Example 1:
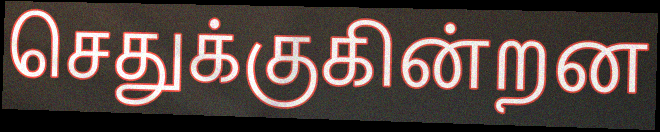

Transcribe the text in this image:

செதுக்குகின்றன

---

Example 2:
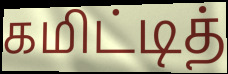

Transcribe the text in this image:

கமிட்டித்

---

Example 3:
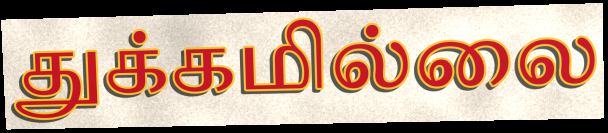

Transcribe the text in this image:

துக்கமில்லை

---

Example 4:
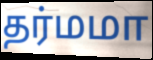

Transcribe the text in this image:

தர்மமா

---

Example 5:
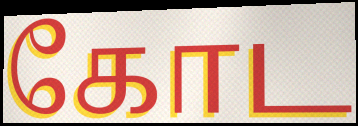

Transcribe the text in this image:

கோட